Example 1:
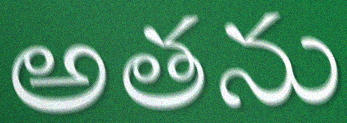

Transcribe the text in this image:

అతను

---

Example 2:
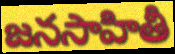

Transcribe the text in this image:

జనసాహితీ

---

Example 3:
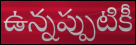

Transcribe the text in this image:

ఉన్నప్పుటికీ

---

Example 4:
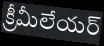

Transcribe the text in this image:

క్రీమీలేయర్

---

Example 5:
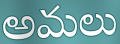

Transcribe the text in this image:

అమలు